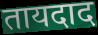
तायदाद